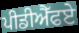
ਪੀਡੀਐੱਫਏ